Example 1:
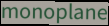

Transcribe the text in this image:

monoplane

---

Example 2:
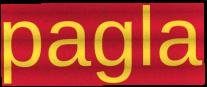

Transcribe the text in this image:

pagla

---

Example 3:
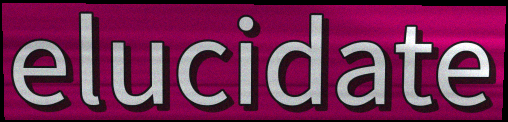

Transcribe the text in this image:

elucidate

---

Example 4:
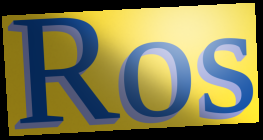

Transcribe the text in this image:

Ros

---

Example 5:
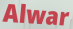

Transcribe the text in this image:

Alwar